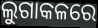
ଲୁଗାକଳରେ